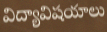
విద్యావిషయాలు